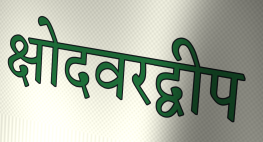
क्षोदवरद्वीप